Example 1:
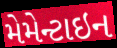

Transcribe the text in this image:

મેમેન્ટાઇન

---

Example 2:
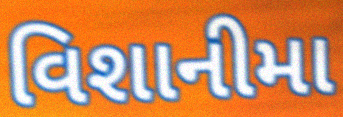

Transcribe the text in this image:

વિશાનીમા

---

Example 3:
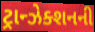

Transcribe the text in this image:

ટ્રાન્ઝેક્શનની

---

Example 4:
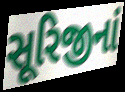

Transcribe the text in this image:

સૂરિજીનાં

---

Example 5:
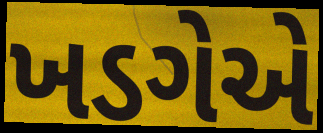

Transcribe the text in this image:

ખડગેએ